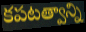
కపటత్వాన్ని